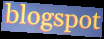
blogspot